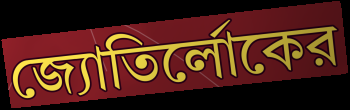
জ্যোতির্লোকের